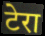
टेरा